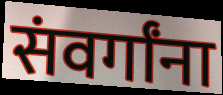
संवर्गांना